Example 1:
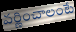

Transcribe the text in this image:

వర్ణించాలంటే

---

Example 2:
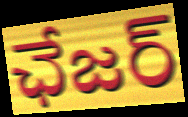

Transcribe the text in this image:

ఛేజర్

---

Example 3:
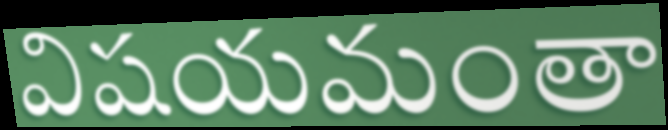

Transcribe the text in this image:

విషయమంతా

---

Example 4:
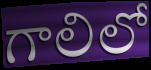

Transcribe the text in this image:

గాలిలో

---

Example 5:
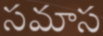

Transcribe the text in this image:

సమాస